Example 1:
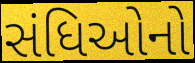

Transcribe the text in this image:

સંધિઓનો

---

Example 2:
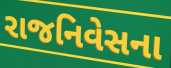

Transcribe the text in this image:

રાજનિવેસના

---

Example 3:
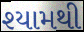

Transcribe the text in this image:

શ્યામથી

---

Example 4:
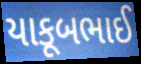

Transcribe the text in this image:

યાકૂબભાઈ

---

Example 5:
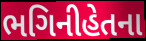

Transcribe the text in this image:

ભગિનીહેતના